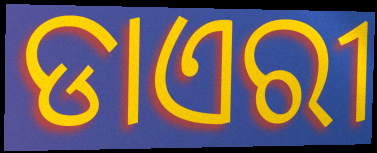
ଡାଏରୀ